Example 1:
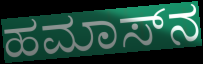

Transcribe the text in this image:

ಹಮಾಸ್‌ನ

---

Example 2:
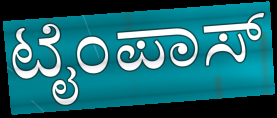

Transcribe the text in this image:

ಟೈಂಪಾಸ್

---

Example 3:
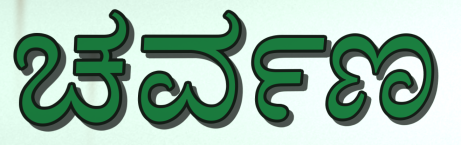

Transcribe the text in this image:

ಚರ್ವಣ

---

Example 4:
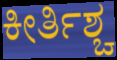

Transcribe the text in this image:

ಕೀರ್ತಿಶ್ಚ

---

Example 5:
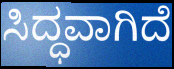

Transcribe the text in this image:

ಸಿದ್ಧವಾಗಿದೆ